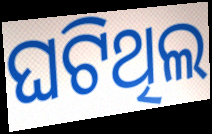
ଘଟିଥିଲ